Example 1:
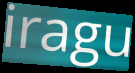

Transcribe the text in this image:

iragu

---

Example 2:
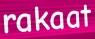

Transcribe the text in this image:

rakaat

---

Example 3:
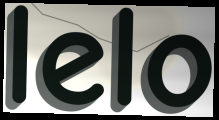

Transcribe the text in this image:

lelo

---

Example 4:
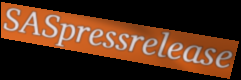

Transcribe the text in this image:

SASpressrelease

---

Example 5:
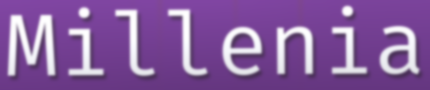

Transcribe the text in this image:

Millenia